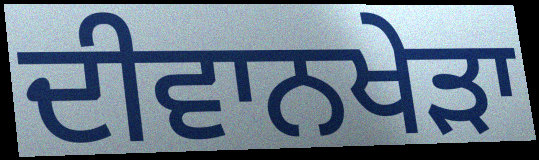
ਦੀਵਾਨਖੇੜਾ